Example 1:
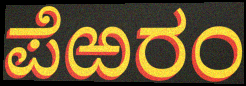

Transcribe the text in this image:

ಪೆಱರಂ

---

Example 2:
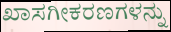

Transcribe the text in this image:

ಖಾಸಗೀಕರಣಗಳನ್ನು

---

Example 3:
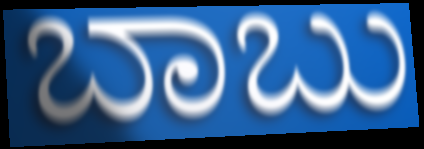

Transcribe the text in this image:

ಬಾಬು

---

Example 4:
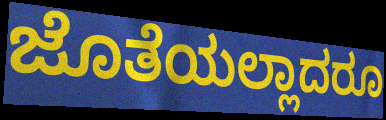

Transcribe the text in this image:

ಜೊತೆಯಲ್ಲಾದರೂ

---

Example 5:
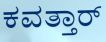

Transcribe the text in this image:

ಕವತ್ತಾರ್